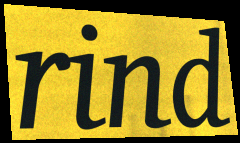
rind